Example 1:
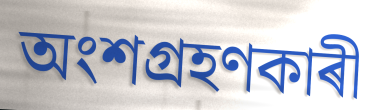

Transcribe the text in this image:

অংশগ্ৰহণকাৰী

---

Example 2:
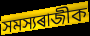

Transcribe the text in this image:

সমস্যৰাজীক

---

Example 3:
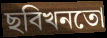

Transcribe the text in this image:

ছবিখনতো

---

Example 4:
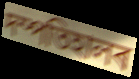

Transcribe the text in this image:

দম্পতিহালৰ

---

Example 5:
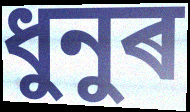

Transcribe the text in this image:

ধুনুৰ